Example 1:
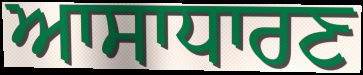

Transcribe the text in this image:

ਆਸਾਧਾਰਣ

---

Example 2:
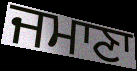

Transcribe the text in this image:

ਜਮਾਣਾ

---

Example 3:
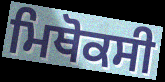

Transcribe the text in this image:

ਮਿਥੋਕਸੀ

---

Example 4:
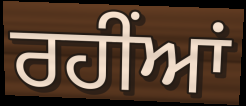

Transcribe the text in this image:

ਰਹੀਂਆਂ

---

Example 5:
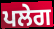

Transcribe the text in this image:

ਪਲੇਗ